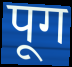
पूग